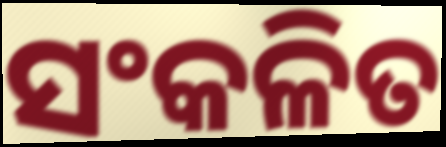
ସଂକଳିତ